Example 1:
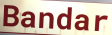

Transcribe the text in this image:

Bandar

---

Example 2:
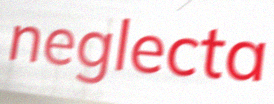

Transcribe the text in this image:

neglecta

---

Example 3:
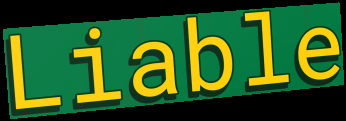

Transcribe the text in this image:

Liable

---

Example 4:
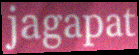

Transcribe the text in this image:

jagapat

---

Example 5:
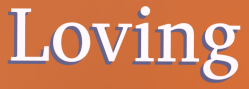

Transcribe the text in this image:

Loving